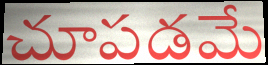
చూపడమే